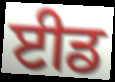
ਈਡ